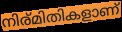
നിര്മിതികളാണ്